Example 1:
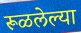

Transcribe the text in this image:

रूळलेल्या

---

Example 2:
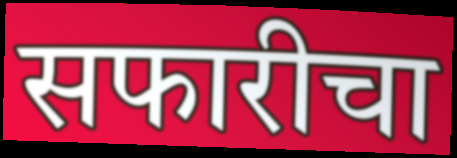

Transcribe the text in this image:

सफारीचा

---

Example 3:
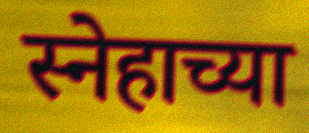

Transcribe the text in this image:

स्नेहाच्या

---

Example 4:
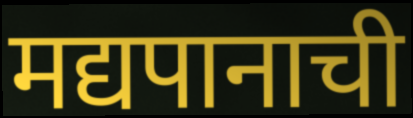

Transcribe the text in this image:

मद्यपानाची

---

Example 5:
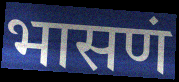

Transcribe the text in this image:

भासणं